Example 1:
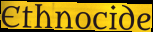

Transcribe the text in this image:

Ethnocide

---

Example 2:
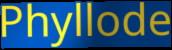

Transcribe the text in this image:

Phyllode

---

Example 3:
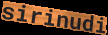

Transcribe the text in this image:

sirinudi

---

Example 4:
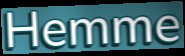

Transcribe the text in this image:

Hemme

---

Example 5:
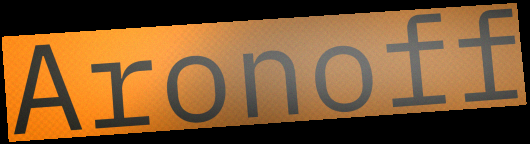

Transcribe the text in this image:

Aronoff